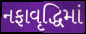
નફાવૃદ્ધિમાં